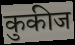
कुकीज